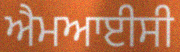
ਐਮਆਈਸੀ